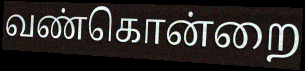
வண்கொன்றை